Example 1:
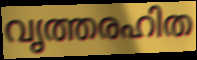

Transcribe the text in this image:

വൃത്തരഹിത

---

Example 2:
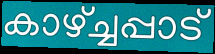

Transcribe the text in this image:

കാഴ്ച്ചപ്പാട്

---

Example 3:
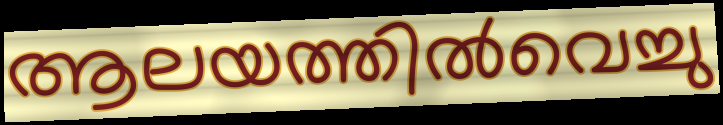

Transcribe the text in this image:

ആലയത്തിൽവെച്ചു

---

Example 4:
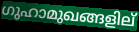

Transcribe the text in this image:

ഗുഹാമുഖങ്ങളില്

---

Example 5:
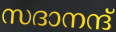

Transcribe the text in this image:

സദാനന്ദ്